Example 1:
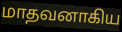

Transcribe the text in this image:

மாதவனாகிய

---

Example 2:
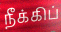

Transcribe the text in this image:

நீக்கிப்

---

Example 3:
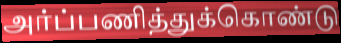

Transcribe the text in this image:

அர்ப்பணித்துக்கொண்டு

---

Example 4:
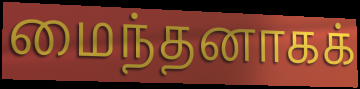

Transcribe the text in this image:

மைந்தனாகக்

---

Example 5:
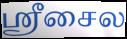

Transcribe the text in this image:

ஸ்ரீசைல